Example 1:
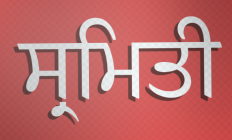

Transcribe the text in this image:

ਸ੍ਰਮਿਤੀ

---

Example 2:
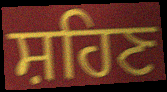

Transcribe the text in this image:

ਸ਼ਹਿਣ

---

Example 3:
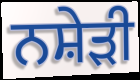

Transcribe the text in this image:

ਨਸ਼ੇੜੀ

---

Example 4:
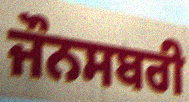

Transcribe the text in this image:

ਜੌਨਸਬਰੀ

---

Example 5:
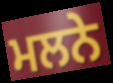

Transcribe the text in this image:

ਮਲਨੇ